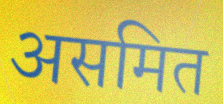
असमित